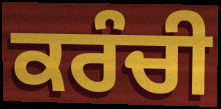
ਕਰੰਚੀ